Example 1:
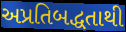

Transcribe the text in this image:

અપ્રતિબદ્ધતાથી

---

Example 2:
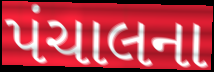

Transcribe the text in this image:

પંચાલના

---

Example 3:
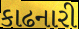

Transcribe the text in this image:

કાઢનારી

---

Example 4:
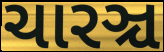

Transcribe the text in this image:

ચારઞ્ચ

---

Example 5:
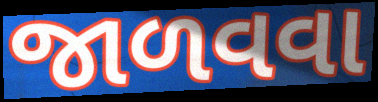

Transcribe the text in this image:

જાળવવા